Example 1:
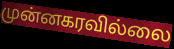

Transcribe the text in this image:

முன்னகரவில்லை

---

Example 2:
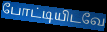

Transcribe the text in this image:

போட்டியிடவே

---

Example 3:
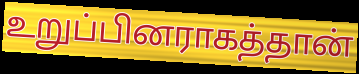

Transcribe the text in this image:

உறுப்பினராகத்தான்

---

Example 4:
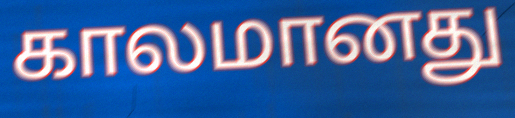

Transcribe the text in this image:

காலமானது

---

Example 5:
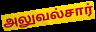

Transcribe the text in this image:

அலுவல்சார்